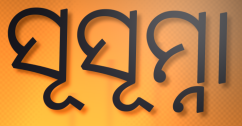
ସୂସୂମ୍ନା